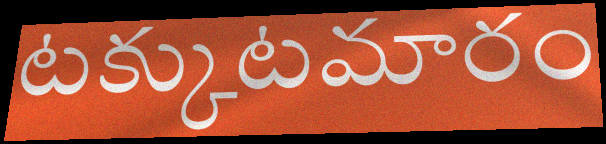
టక్కుటమారం